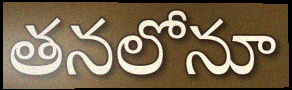
తనలోనూ